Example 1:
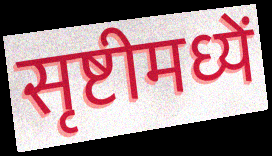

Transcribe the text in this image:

सृष्टीमध्यें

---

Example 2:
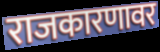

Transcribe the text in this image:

राजकारणावर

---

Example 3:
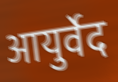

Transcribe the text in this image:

आयुर्वेद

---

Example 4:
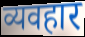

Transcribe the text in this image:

व्यवहार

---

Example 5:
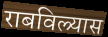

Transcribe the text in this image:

राबविल्यास